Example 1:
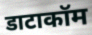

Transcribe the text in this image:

डाटाकॉम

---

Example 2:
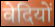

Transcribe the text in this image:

वेदियों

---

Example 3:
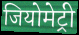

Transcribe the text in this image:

जियोमेट्री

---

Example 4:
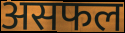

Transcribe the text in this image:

असफल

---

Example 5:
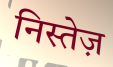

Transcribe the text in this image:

निस्तेज़